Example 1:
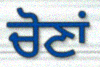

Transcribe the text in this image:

ਚੋਣਾਂ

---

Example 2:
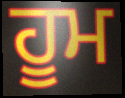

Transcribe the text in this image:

ਹੂਮ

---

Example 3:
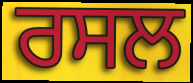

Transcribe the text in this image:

ਰਸਲ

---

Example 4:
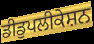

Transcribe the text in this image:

ਡੀਡੁਪਲੀਕੇਸ਼ਨ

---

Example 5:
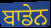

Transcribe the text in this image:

ਬਾਡੇਨ